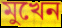
মুখেন